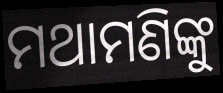
ମଥାମଣିଙ୍କୁ